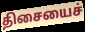
திசையைச்